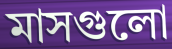
মাসগুলো